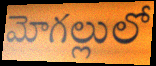
మోగల్లులో